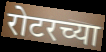
रोटरच्या